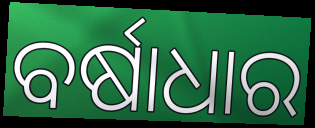
ବର୍ଷାଧାର